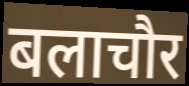
बलाचौर